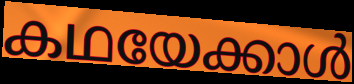
കഥയേക്കാൾ